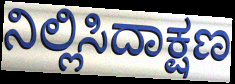
ನಿಲ್ಲಿಸಿದಾಕ್ಷಣ